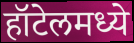
हॉटेलमध्ये